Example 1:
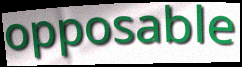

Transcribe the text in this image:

opposable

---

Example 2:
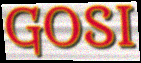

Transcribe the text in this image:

GOSI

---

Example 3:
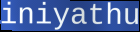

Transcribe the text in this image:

iniyathu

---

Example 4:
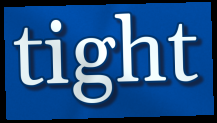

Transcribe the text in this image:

tight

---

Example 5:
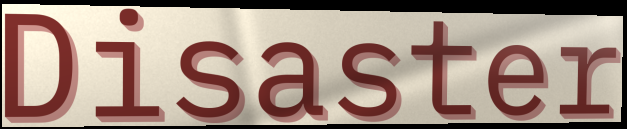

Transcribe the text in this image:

Disaster